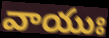
వాయుః